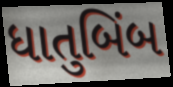
ધાતુબિંબ